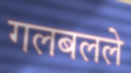
गलबलले